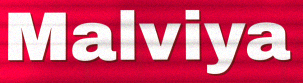
Malviya